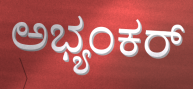
ಅಭ್ಯಂಕರ್